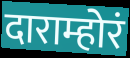
दाराम्होरं